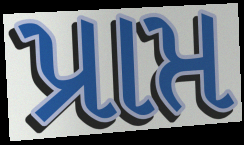
પ્રાપ્ત